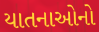
યાતનાઓનો